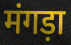
मंगड़ा